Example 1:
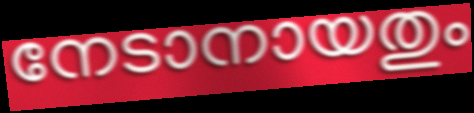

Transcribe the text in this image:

നേടാനായതും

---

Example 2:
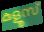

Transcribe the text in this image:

കുളൂസ്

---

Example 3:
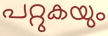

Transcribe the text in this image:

പറ്റുകയും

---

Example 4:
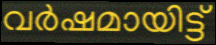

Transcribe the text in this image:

വർഷമായിട്ട്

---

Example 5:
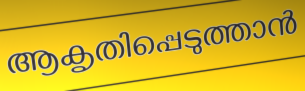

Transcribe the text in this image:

ആകൃതിപ്പെടുത്താൻ